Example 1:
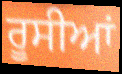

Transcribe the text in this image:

ਰੂਸੀਆਂ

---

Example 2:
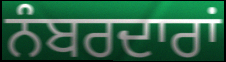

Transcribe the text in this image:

ਨੰਬਰਦਾਰਾਂ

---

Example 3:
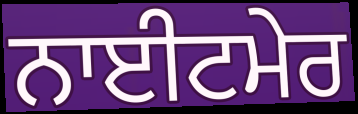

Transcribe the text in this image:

ਨਾਈਟਮੇਰ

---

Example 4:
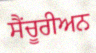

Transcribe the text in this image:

ਸੈਂਚੂਰੀਅਨ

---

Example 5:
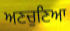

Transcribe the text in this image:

ਅਣਚੁਣਿਆ